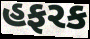
હફરક